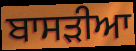
ਬਾਸੜੀਆ